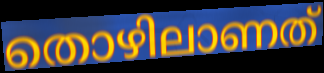
തൊഴിലാണത്